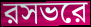
রসভরে